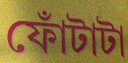
ফোঁটাটা